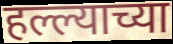
हल्ल्याच्या